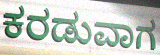
ಕರಡುವಾಗ